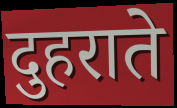
दुहराते